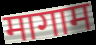
मागाम